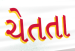
ચેતતા